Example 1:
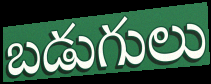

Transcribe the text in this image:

బడుగులు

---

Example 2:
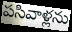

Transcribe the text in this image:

పసివాళ్లను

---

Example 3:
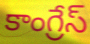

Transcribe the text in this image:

కాంగ్రేస్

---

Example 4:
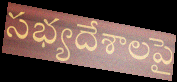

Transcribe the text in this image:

సభ్యదేశాలపై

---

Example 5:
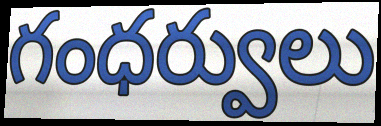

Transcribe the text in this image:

గంధర్వులు